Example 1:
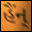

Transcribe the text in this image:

હૈંન્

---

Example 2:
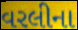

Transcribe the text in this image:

વરલીના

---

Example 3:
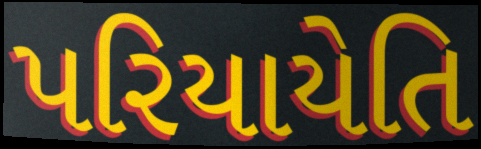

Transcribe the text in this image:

પરિયાયેતિ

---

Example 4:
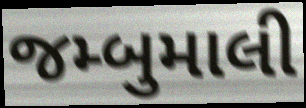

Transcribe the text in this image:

જમ્બુમાલી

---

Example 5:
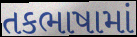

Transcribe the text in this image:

તકભાષામાં